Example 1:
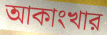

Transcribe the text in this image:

আকাংখার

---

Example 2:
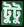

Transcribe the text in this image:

টুটু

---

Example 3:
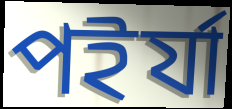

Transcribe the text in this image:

পইর্যা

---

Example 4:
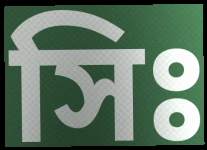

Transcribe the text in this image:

সিঃ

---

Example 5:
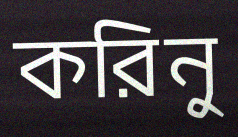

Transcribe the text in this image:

করিনু